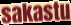
sakastu